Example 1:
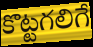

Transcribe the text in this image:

కొట్టగలిగే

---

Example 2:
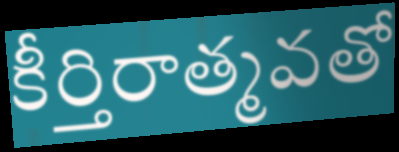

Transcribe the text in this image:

కీర్తిరాత్మవతో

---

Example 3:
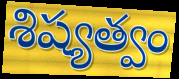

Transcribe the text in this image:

శిష్యత్వం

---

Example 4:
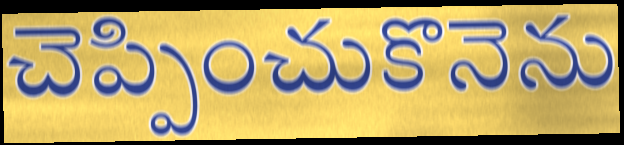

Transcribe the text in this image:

చెప్పించుకొనెను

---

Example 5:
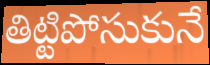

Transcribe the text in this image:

తిట్టిపోసుకునే